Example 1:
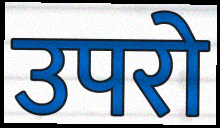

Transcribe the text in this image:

उपरो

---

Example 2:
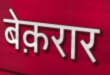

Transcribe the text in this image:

बेक़रार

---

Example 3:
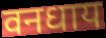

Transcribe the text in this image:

वनधाय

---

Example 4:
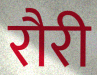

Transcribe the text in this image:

रौरी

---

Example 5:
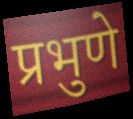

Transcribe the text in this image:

प्रभुणे